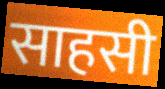
साहसी